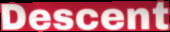
Descent